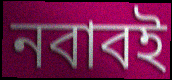
নবাবই